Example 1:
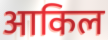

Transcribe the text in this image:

आकिल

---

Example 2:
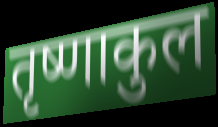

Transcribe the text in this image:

तृष्णाकुल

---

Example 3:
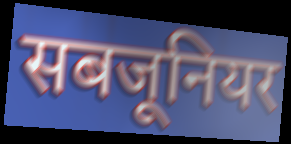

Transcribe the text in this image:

सबजूनियर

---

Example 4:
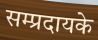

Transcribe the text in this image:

सम्प्रदायके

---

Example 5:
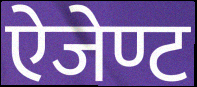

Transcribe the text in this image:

ऐजेण्ट